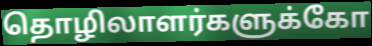
தொழிலாளர்களுக்கோ